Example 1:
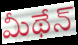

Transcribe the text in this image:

మీథేన్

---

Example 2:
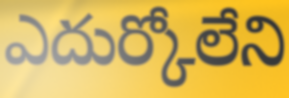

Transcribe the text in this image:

ఎదుర్కోలేని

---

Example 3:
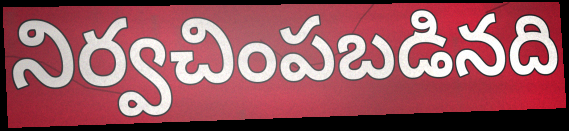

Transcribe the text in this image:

నిర్వచింపబడినది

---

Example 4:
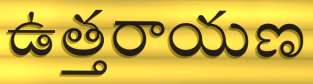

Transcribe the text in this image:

ఉత్తరాయణ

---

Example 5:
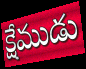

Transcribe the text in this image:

క్షేముడు